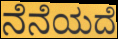
ನೆನೆಯದೆ